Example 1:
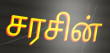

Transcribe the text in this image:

சரசின்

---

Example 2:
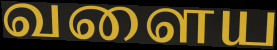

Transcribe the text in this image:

வளைய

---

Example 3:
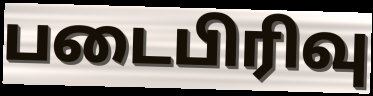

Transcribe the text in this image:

படைபிரிவு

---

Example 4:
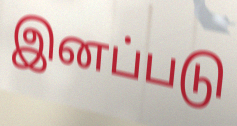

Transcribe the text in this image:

இனப்படு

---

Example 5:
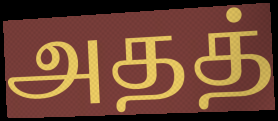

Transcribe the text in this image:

அதத்